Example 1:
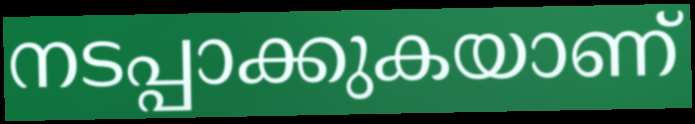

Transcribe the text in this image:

നടപ്പാക്കുകയാണ്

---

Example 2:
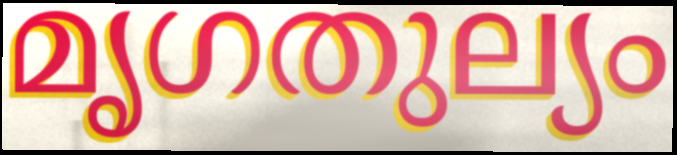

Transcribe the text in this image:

മൃഗതുല്യം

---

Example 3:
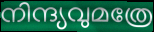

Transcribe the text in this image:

നിന്ദ്യവുമത്രേ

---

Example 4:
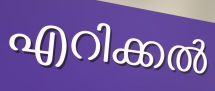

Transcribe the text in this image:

എറിക്കൽ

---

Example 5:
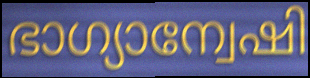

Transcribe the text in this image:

ഭാഗ്യാന്വേഷി